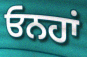
ਓਨਹਾਂ